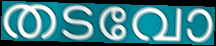
തടവോ